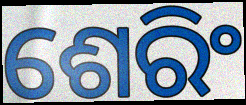
ଶେରିଂ